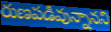
రుణపడివున్నానని